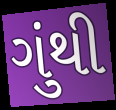
ગુંથી